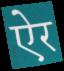
ऐर